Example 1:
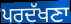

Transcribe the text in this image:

ਪਰਦੱਖਣਾ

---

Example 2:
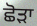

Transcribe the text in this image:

ਛੋੜਾ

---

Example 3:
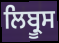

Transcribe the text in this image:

ਲਿਬ੍ਰੂਸ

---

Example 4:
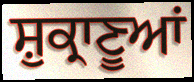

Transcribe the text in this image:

ਸ਼ੁਕ੍ਰਾਣੂਆਂ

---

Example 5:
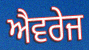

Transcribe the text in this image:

ਐਵਰੇਜ